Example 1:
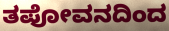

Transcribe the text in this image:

ತಪೋವನದಿಂದ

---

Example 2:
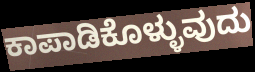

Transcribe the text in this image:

ಕಾಪಾಡಿಕೊಳ್ಳುವುದು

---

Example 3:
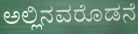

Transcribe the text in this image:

ಅಲ್ಲಿನವರೊಡನೆ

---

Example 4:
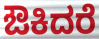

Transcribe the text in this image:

ಔಕಿದರೆ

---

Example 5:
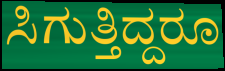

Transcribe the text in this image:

ಸಿಗುತ್ತಿದ್ದರೂ